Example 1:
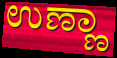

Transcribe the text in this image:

ಉಣ್ಣಾ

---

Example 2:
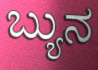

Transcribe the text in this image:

ಬ್ಯುನ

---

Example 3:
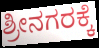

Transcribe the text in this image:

ಶ್ರೀನಗರಕ್ಕೆ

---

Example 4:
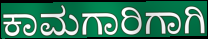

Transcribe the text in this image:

ಕಾಮಗಾರಿಗಾಗಿ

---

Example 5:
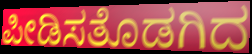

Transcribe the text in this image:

ಪೀಡಿಸತೊಡಗಿದ